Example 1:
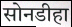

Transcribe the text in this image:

सोनडीहा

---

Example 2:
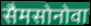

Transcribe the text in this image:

सैमसोनोवा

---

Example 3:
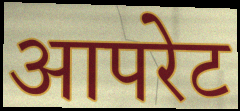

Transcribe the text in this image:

आपरेट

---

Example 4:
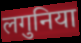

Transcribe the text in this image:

लगुनिया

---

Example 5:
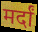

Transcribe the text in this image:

मर्दां